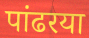
पांढरया